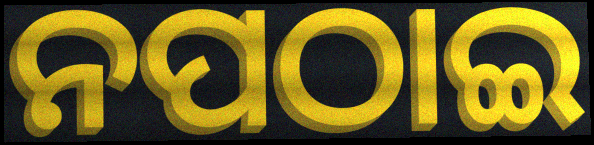
ନପଠାଇ